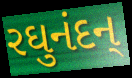
રઘુનંદન્